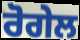
ਰੋਗੇਲ